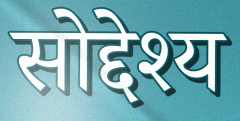
सोद्देश्य